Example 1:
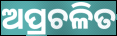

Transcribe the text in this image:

ଅପ୍ରଚଳିତ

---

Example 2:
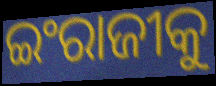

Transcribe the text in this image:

ଇଂରାଜୀକୁ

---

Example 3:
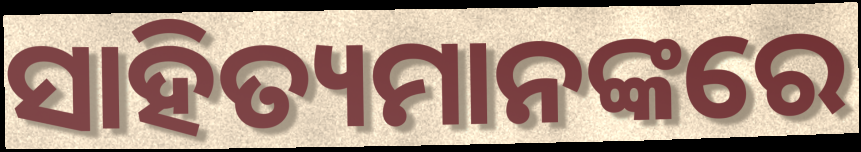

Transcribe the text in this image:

ସାହିତ୍ୟମାନଙ୍କରେ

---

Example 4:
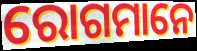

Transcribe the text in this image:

ରୋଗମାନେ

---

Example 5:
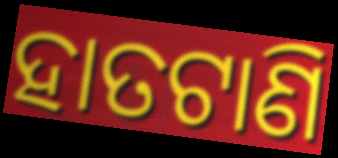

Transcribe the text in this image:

ହାତଟାଣି